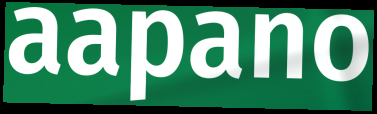
aapano